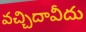
వచ్చిదావీదు